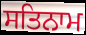
ਸਤਿਨਾਮ